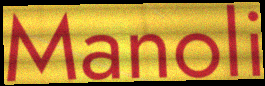
Manoli